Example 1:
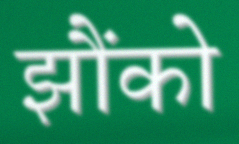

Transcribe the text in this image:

झौंको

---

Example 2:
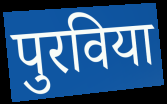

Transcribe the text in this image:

पुरविया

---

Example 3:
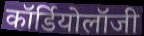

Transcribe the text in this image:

कॉर्डियोलॉजी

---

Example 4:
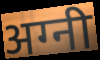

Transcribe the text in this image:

अग्नी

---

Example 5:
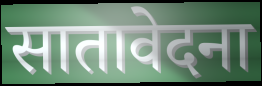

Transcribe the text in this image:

सातावेदना